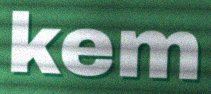
kem